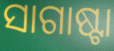
ସାଗାଷ୍ଟା